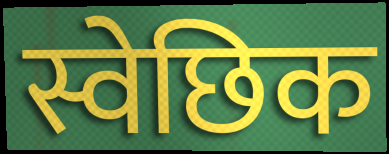
स्वेछिक